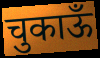
चुकाऊँ